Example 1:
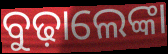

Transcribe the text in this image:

ବୁଢ଼ାଲେଙ୍କା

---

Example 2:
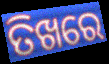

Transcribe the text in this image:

ତିଖରେ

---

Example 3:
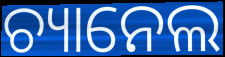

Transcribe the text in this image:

ଚ୍ୟାନେଲ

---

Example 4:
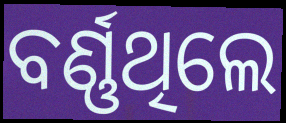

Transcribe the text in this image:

ବର୍ଣ୍ଣଥିଲେ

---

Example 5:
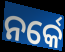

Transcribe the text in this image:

ନର୍କେ